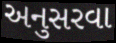
અનુસરવા